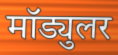
मॉड्युलर